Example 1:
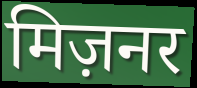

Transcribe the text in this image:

मिज़नर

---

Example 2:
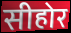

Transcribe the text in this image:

सीहोर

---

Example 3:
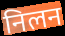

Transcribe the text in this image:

निलन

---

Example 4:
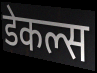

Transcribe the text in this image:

डेकल्स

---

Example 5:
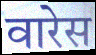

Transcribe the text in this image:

वारेस